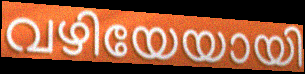
വഴിയേയായി